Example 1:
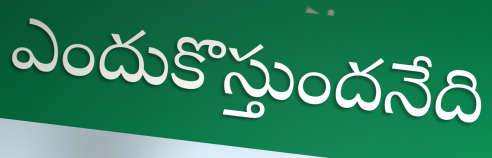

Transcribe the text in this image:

ఎందుకొస్తుందనేది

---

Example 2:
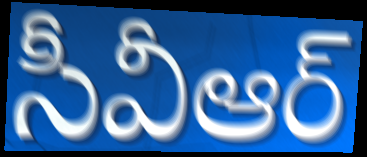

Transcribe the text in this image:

సీవీఆర్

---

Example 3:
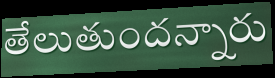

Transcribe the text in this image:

తేలుతుందన్నారు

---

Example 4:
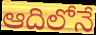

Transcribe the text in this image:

ఆదిలోనే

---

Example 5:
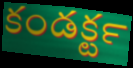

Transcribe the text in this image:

కండక్టర్‍